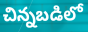
చిన్నబడిలో